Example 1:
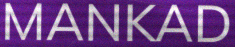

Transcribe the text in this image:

MANKAD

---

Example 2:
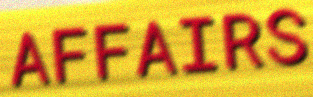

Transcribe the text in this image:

AFFAIRS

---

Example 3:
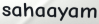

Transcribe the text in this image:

sahaayam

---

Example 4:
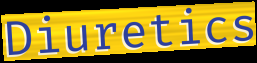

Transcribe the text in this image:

Diuretics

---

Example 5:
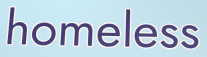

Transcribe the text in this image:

homeless